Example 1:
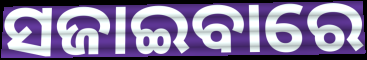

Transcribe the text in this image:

ସଜାଇବାରେ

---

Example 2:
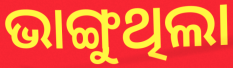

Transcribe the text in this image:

ଭାଙ୍ଗୁଥିଲା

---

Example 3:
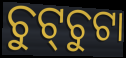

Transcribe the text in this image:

ଚୁଟ୍‌ଚୁଟା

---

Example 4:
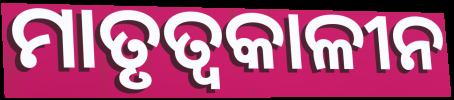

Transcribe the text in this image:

ମାତୃତ୍ୱକାଳୀନ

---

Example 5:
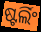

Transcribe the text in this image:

ଷ୍ଟର୍ଲିଂ